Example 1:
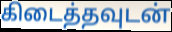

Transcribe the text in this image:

கிடைத்தவுடன்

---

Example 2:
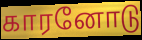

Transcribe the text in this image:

காரனோடு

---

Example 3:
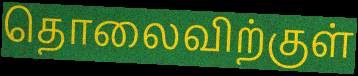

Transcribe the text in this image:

தொலைவிற்குள்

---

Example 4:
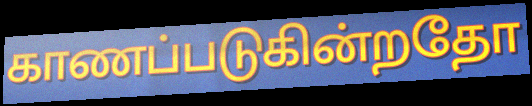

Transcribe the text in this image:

காணப்படுகின்றதோ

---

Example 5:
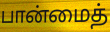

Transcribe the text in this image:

பான்மைத்